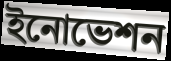
ইনোভেশন